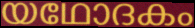
യഥോദകം